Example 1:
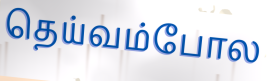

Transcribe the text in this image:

தெய்வம்போல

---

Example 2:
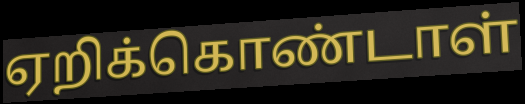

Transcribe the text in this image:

ஏறிக்கொண்டாள்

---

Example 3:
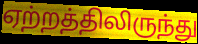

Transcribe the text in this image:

ஏற்றத்திலிருந்து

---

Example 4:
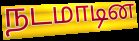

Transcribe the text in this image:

நடமாடின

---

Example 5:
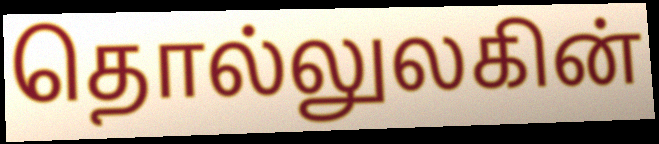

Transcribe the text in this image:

தொல்லுலகின்